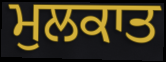
ਮੁਲਕਾਤ